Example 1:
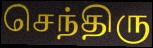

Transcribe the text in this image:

செந்திரு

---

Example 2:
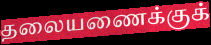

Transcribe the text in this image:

தலையணைக்குக்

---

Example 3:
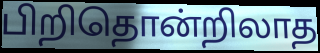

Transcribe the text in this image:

பிறிதொன்றிலாத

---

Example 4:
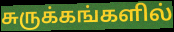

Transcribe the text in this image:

சுருக்கங்களில்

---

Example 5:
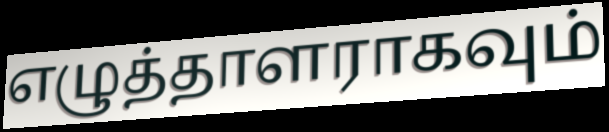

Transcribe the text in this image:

எழுத்தாளராகவும்